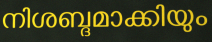
നിശബ്ദമാക്കിയും